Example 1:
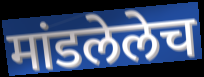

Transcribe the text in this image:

मांडलेलेच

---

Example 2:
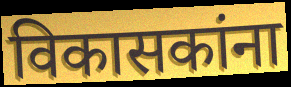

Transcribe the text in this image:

विकासकांना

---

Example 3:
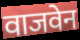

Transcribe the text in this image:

वाजवेन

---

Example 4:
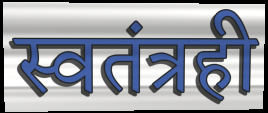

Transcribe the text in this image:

स्वतंत्रही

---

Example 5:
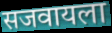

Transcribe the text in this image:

सजवायला